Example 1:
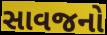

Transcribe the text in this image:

સાવજનો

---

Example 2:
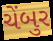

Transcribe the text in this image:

ચેંબુર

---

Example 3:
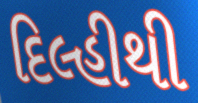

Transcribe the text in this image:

દિલ્હીથી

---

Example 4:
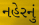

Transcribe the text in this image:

નહેરનું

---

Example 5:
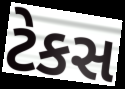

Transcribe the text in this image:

ટેકસ